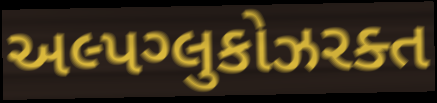
અલ્પગ્લુકોઝરક્ત